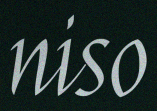
niso